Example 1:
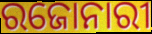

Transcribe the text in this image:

ରଜୋନାରୀ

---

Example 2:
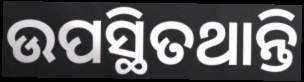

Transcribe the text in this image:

ଉପସ୍ଥିତଥାନ୍ତି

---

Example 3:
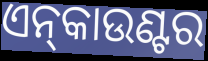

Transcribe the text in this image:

ଏନ୍‌କାଉଣ୍ଟର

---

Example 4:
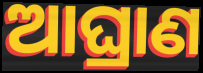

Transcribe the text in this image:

ଆଘ୍ରାଣ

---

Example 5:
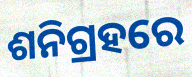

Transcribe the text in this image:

ଶନିଗ୍ରହରେ